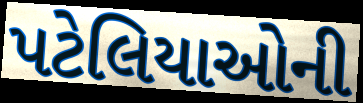
પટેલિયાઓની